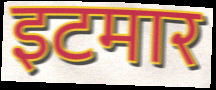
इटमार